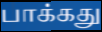
பாக்கது